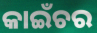
କାଇଁଚର